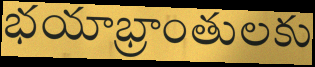
భయాభ్రాంతులకు